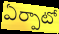
ఏర్పాటో